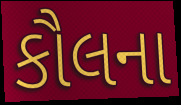
કૌલના